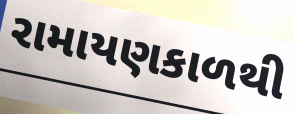
રામાયણકાળથી